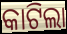
କାଟିଲା